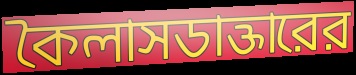
কৈলাসডাক্তারের